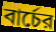
বার্চের